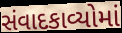
સંવાદકાવ્યોમાં